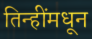
तिन्हींमधून